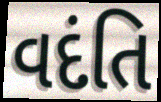
વદંતિ